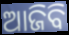
ଆଜିବି